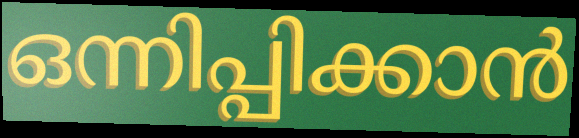
ഒന്നിപ്പിക്കാൻ